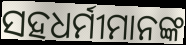
ସହଧର୍ମୀମାନଙ୍କ